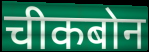
चीकबोन